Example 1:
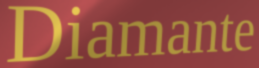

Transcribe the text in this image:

Diamante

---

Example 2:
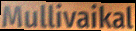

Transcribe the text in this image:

Mullivaikal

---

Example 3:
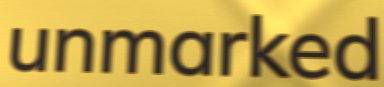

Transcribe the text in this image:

unmarked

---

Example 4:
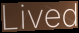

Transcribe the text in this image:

Lived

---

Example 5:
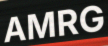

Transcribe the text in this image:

AMRG